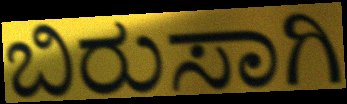
ಬಿರುಸಾಗಿ